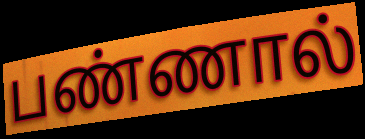
பண்ணால்